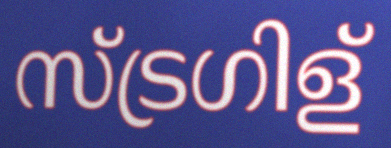
സ്ട്രഗിള്